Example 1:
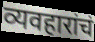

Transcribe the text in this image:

व्यवहारांचं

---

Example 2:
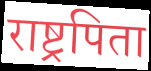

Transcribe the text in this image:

राष्ट्रपिता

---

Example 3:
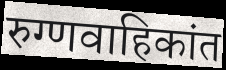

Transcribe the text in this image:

रुग्णवाहिकांत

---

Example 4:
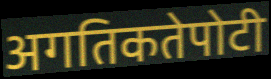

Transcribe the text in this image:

अगतिकतेपोटी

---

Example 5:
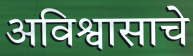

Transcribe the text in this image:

अविश्वासाचे